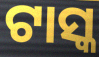
ଟାସ୍କ